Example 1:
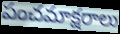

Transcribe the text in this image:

పంచమాక్షరాలు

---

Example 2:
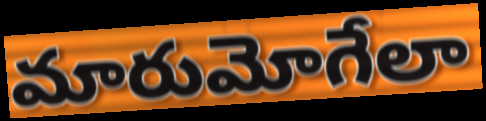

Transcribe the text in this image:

మారుమోగేలా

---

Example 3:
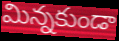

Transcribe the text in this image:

మిన్నకుండా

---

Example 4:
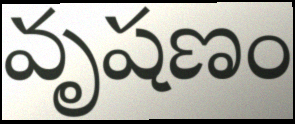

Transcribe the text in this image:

వృషణం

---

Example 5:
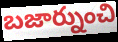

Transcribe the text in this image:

బజార్నుంచి